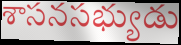
శాసనసభ్యుడు